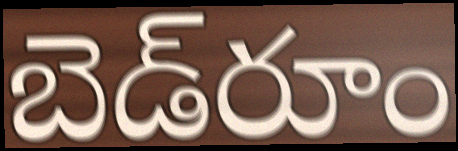
బెడ్‌రూం